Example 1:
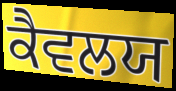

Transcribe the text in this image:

ਕੈਵਲਯ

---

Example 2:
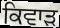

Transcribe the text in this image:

ਕਿਵਾੜ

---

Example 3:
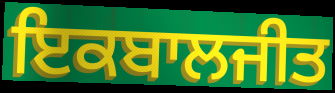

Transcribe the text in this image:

ਇਕਬਾਲਜੀਤ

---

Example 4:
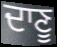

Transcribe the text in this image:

ਦਾਣੂ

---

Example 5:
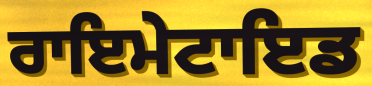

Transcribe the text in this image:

ਰਾਇਮੇਟਾਇਡ